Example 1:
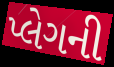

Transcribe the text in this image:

પ્લેગની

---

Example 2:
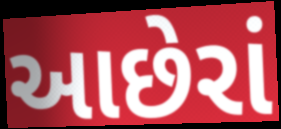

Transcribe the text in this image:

આછેરાં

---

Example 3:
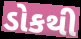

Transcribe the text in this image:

ડોકથી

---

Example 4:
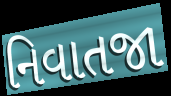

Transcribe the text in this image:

નિવાતજા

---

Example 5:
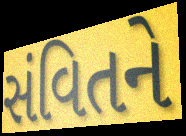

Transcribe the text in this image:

સંવિતને